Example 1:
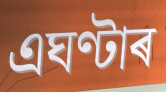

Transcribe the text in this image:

এঘণ্টাৰ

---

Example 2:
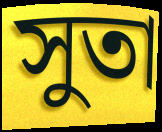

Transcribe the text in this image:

সুতা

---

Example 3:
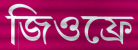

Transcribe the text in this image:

জিওফ্ৰে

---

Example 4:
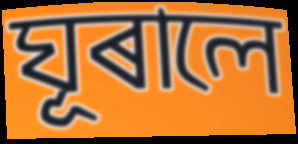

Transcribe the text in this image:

ঘূৰালে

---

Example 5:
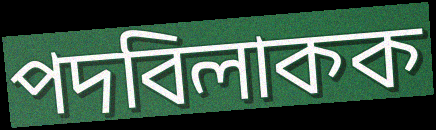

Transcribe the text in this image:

পদবিলাকক